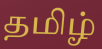
தமிழ்